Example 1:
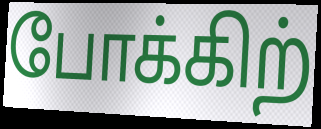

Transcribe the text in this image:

போக்கிற்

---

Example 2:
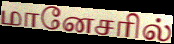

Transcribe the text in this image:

மானேசரில்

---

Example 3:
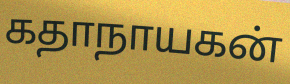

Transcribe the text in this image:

கதாநாயகன்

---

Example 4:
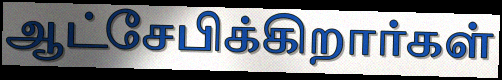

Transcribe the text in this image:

ஆட்சேபிக்கிறார்கள்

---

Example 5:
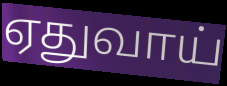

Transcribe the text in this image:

ஏதுவாய்